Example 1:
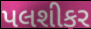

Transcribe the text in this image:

પલશીકર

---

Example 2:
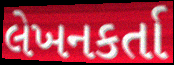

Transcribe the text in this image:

લેખનકર્તા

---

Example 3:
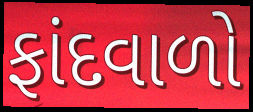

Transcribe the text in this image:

ફાંદવાળો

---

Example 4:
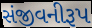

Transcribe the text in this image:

સંજીવનીરૂપ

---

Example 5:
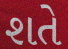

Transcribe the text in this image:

શતે